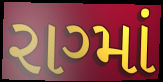
રાગ્માં